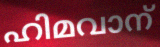
ഹിമവാന്